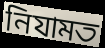
নিযামত